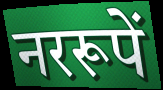
नररूपें